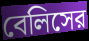
বেলিসের